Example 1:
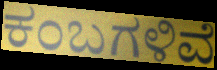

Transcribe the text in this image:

ಕಂಬಗಳಿವೆ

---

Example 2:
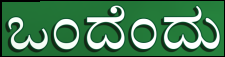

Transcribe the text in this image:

ಒಂದೆಂದು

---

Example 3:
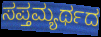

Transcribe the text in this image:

ಸಪ್ತಮ್ಯರ್ಥದ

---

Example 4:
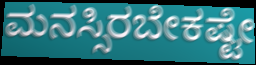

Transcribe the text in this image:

ಮನಸ್ಸಿರಬೇಕಷ್ಟೇ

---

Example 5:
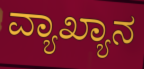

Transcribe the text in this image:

ವ್ಯಾಖ್ಯಾನ